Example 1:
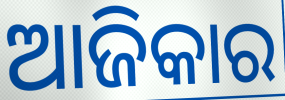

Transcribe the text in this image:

ଆଜିକାର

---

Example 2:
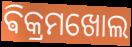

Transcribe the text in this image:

ଵିକ୍ରମଖୋଲ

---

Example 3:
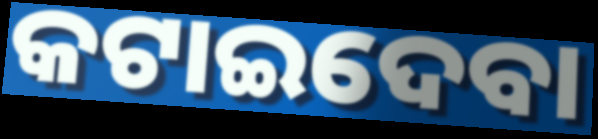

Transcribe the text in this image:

କଟାଇଦେବା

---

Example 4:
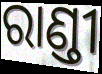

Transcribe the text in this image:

ରାଣ୍ଡୀ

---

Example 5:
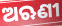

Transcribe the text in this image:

ଅଋଣୀ